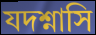
যদশ্নাসি